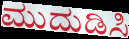
ಮುದುಡಿಸಿ